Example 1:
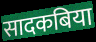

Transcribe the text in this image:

सादकबिया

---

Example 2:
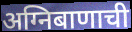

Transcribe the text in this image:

अग्निबाणाची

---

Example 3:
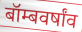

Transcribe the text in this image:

बॉम्बवर्षांव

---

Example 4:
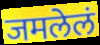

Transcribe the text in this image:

जमलेलं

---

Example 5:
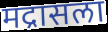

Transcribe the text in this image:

मद्रासला